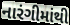
નારંગીમાંથી